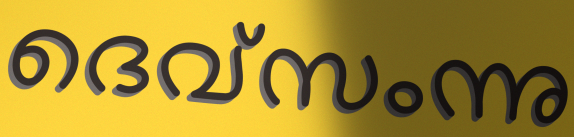
ദെവ്സംന്നു